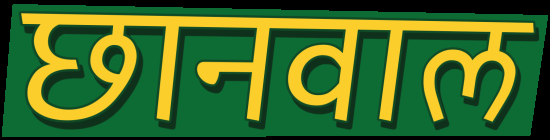
छानवाल